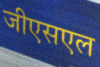
जीएसएल